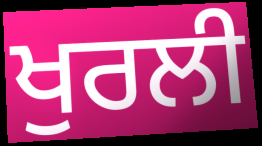
ਖੁਰਲੀ